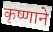
कृष्णाने